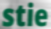
stie